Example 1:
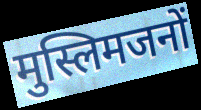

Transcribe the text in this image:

मुस्लिमजनों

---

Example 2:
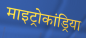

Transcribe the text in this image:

माइट्रोकांड्रिया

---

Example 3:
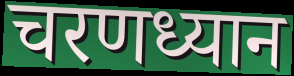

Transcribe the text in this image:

चरणध्यान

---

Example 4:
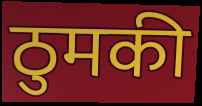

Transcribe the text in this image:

ठुमकी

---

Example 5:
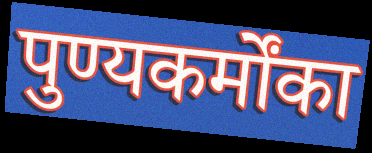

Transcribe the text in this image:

पुण्यकर्मोंका